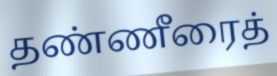
தண்ணீரைத்